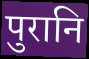
पुरानि